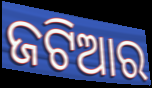
ଜଟିଆର